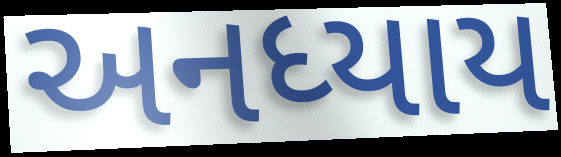
અનધ્યાય